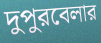
দুপুরবেলার